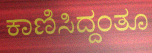
ಕಾಣಿಸಿದ್ದಂತೂ